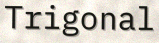
Trigonal